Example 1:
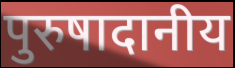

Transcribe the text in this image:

पुरुषादानीय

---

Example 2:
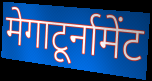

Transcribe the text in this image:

मेगाटूर्नामेंट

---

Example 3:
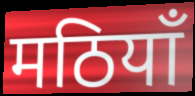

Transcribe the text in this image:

मठियाँ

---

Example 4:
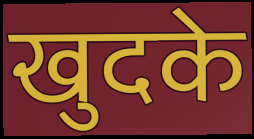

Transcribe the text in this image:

खुदके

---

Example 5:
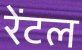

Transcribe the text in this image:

रेंटल